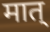
मात्